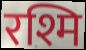
रश्मि